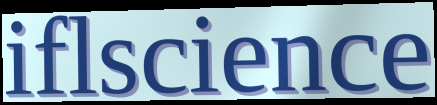
iflscience